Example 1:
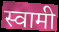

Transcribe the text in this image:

स्वामी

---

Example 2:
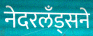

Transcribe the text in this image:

नेदरलँड्सने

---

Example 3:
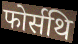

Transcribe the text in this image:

फोर्सथि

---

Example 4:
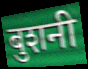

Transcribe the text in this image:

बुशनी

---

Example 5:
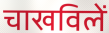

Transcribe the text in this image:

चाखविलें